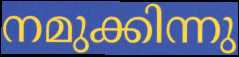
നമുക്കിന്നു